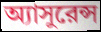
অ্যাসুরেন্স